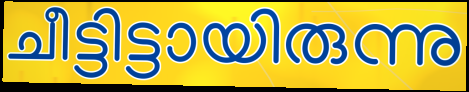
ചീട്ടിട്ടായിരുന്നു